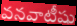
వనవాటీషు